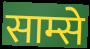
साम्से